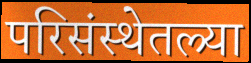
परिसंस्थेतल्या